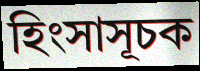
হিংসাসূচক